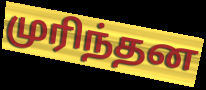
முரிந்தன